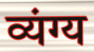
व्‍यंग्‍य